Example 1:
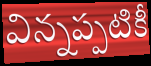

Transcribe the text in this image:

విన్నప్పటికీ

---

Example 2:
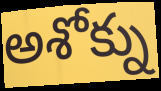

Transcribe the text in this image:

అశోక్ను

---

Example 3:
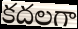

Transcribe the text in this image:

కదలగా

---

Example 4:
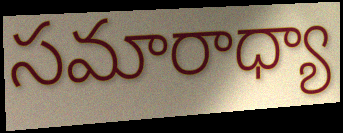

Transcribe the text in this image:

సమారాధ్యా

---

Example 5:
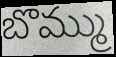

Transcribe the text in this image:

బొమ్ము